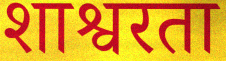
शाश्वरता